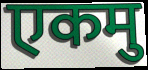
एकमु